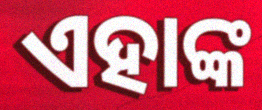
ଏହାଙ୍କ